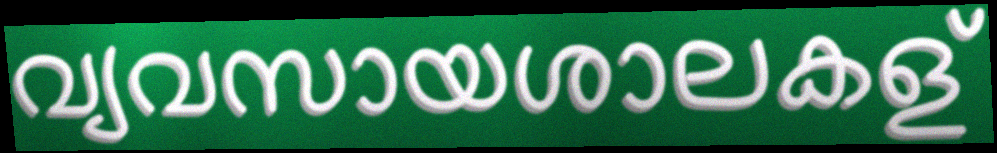
വ്യവസായശാലകള്